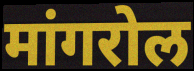
मांगरोल